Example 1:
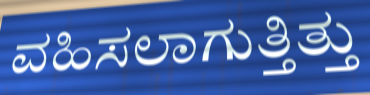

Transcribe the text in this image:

ವಹಿಸಲಾಗುತ್ತಿತ್ತು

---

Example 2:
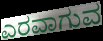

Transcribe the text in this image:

ಎರವಾಗುವ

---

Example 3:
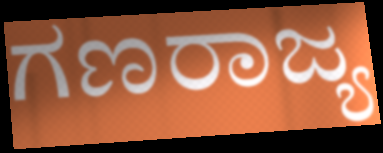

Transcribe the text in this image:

ಗಣರಾಜ್ಯ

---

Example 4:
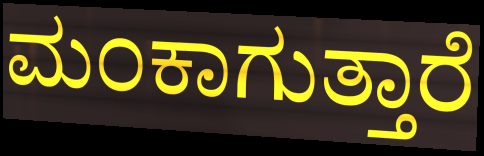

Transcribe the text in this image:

ಮಂಕಾಗುತ್ತಾರೆ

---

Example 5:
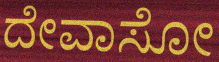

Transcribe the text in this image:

ದೇವಾಸೋ